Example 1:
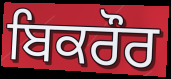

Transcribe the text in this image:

ਬਿਕਰੌਰ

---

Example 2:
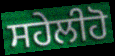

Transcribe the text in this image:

ਸਹੇਲੀਹੋ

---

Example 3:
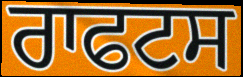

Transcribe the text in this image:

ਰਾਫਟਸ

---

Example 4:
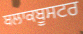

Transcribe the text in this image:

ਬਲਾਕਬੂਸਟਰ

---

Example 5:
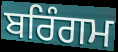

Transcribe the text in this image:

ਬਰਿੰਗਮ